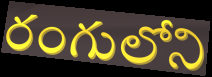
రంగులోని